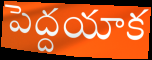
పెద్దయాక